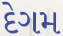
દેગમ